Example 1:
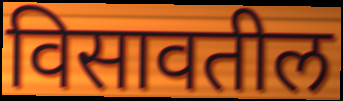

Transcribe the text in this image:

विसावतील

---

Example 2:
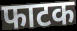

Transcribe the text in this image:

फाटक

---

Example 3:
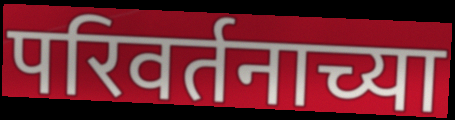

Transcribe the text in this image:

परिवर्तनाच्या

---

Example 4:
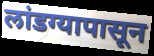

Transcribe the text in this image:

लांडग्यापासून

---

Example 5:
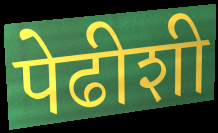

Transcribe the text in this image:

पेढीशी